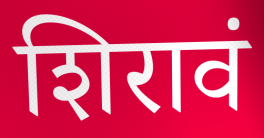
शिरावं